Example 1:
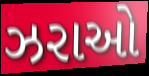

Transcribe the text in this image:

ઝરાઓ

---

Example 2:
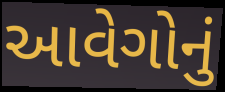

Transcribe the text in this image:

આવેગોનું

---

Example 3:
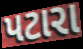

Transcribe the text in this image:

પટારા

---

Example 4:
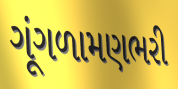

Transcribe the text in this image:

ગૂંગળામણભરી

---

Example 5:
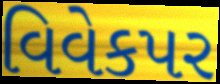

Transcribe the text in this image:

વિવેકપર